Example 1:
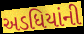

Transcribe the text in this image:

અડધિયાંની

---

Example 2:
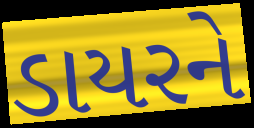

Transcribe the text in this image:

ડાયરને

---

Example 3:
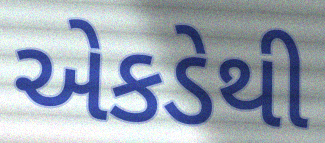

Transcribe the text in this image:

એકડેથી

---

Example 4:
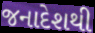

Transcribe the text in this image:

જનાદેશથી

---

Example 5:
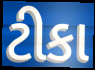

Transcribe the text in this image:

ટીકા